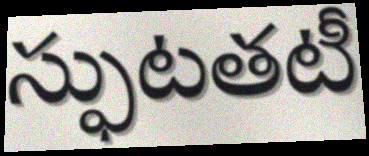
స్ఫుటతటీ